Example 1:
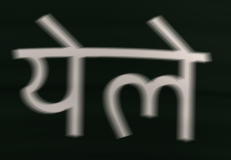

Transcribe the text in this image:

येले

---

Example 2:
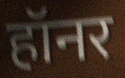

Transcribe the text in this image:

हॉनर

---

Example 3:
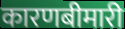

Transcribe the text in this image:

कारणबीमारी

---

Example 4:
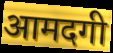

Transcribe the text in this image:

आमदगी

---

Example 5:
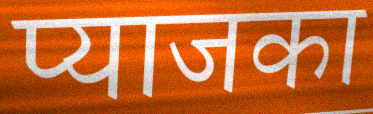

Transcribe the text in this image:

प्याजका